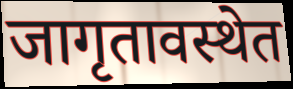
जागृतावस्थेत